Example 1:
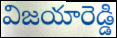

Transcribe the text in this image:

విజయారెడ్డి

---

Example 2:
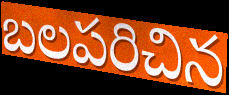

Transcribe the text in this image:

బలపరిచిన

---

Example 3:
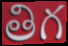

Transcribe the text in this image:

తిగ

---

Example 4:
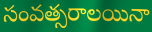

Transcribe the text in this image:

సంవత్సరాలయినా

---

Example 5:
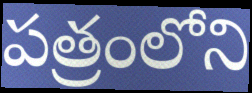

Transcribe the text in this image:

పత్రంలోని